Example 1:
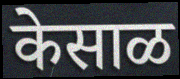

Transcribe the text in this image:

केसाळ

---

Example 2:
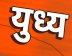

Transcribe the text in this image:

युध्य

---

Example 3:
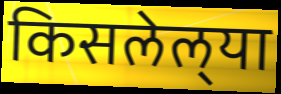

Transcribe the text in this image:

किसलेल्या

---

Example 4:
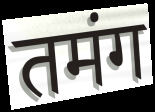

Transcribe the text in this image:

तमंग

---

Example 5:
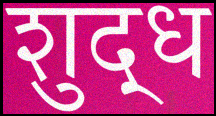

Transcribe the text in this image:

शुद्ध